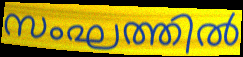
സംഘത്തിൽ